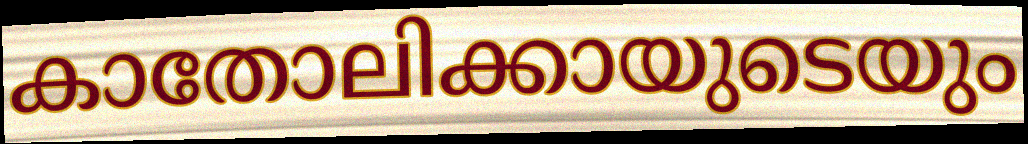
കാതോലിക്കായുടെയും